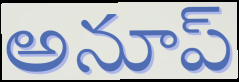
అనూప్